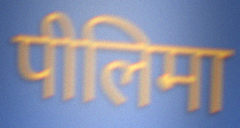
पीलिमा